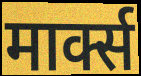
मार्क्स